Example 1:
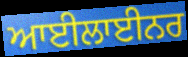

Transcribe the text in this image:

ਆਈਲਾਈਨਰ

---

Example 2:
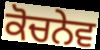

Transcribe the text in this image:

ਕੋਚਨੇਵ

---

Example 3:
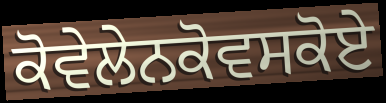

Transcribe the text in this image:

ਕੋਵੇਲੇਨਕੋਵਸਕੋਏ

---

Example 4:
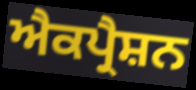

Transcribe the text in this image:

ਐਕਪ੍ਰੈਸ਼ਨ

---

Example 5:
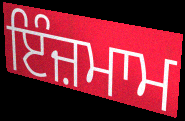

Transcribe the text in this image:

ਇੰਜ਼ਮਾਮ